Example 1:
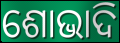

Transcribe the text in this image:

ଶୋଭାଦି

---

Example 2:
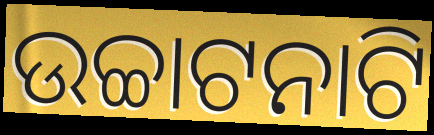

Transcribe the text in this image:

ଉଚ୍ଚାଟନାଟି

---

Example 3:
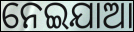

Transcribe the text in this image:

ନେଇଯାଆ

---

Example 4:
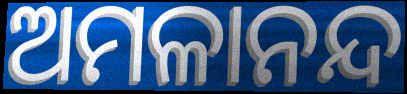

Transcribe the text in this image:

ଅମଳାନନ୍ଦ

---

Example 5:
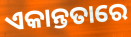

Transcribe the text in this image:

ଏକାନ୍ତତାରେ